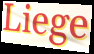
Liege